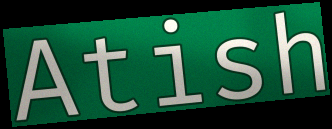
Atish